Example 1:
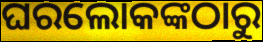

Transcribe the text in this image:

ଘରଲୋକଙ୍କଠାରୁ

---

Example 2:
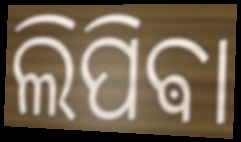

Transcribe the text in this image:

ଲିପିଵା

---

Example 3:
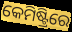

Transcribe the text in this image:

କେମିଷ୍ଟ୍ରିରେ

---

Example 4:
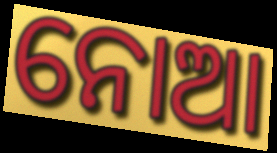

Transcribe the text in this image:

ନୋଆ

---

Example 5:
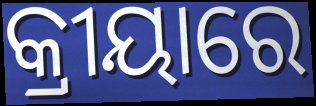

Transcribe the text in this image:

କ୍ରୀୟାରେ